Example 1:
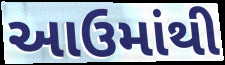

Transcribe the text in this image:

આઉમાંથી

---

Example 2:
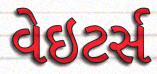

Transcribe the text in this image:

વેઇટર્સ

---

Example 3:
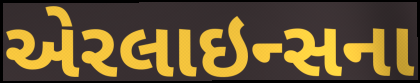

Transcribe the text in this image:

એરલાઇન્સના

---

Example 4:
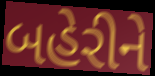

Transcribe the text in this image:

બહેરીને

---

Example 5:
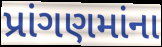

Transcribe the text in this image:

પ્રાંગણમાંના